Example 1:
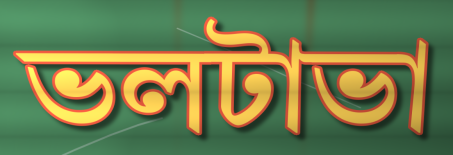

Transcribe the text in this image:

ভলটাভা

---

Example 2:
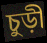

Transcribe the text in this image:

চুড়ী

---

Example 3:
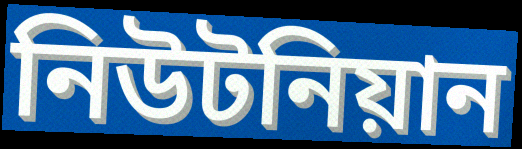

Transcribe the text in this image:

নিউটনিয়ান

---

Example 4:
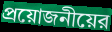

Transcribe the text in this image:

প্রয়োজনীয়ের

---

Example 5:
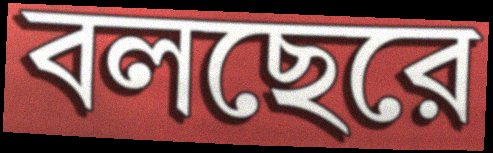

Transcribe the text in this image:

বলছেরে